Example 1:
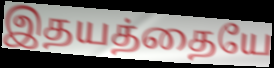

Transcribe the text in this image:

இதயத்தையே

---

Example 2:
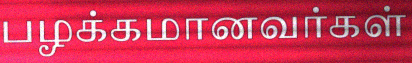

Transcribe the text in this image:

பழக்கமானவர்கள்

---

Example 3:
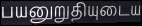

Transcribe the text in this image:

பயனுறுதியுடைய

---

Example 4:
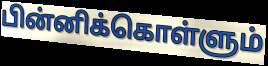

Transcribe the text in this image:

பின்னிக்கொள்ளும்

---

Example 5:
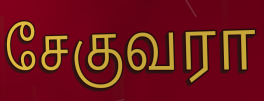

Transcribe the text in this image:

சேகுவரா